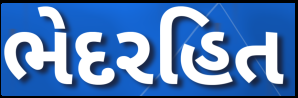
ભેદરહિત